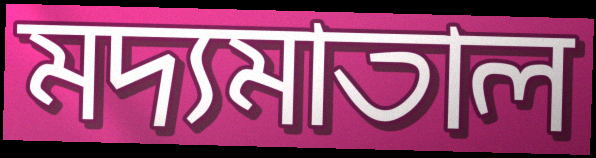
মদ্যমাতাল